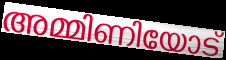
അമ്മിണിയോട്